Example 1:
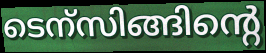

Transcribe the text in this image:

ടെന്സിങ്ങിന്റെ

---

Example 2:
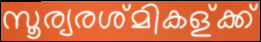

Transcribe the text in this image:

സൂര്യരശ്മികള്ക്ക്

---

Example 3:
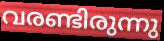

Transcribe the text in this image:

വരണ്ടിരുന്നു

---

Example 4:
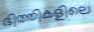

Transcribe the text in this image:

ഭിത്തികളിലെ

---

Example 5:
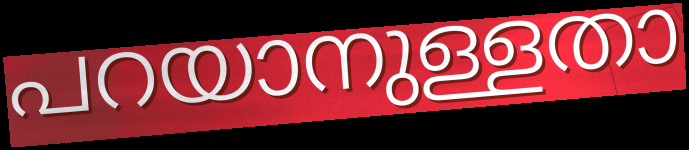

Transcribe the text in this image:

പറയാനുള്ളതാ